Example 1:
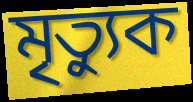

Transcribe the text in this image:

মৃত্যুক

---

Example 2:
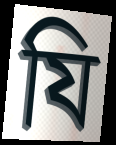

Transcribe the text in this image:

যি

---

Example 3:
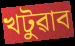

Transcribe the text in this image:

খটুৱাব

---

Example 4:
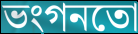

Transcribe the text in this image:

ভংগনতো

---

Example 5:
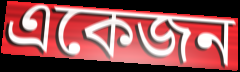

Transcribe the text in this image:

একেজন